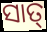
ସାତ୍